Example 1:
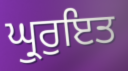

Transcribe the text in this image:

ਘ੍ਰੁਰੁਇਤ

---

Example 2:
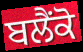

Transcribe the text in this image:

ਬਲੈਂਕੋ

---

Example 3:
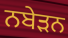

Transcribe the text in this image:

ਨਬੇੜਨ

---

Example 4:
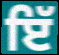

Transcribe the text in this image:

ਇੱ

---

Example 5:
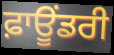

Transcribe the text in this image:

ਫ਼ਾਊਂਡਰੀ